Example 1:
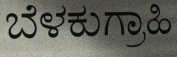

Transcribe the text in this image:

ಬೆಳಕುಗ್ರಾಹಿ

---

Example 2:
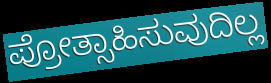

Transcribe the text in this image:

ಪ್ರೋತ್ಸಾಹಿಸುವುದಿಲ್ಲ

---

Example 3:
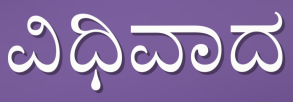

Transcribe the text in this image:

ವಿಧಿವಾದ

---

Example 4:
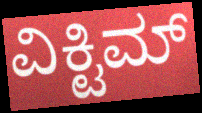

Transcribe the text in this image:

ವಿಕ್ಟಿಮ್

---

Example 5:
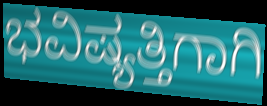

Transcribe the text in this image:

ಭವಿಷ್ಯತ್ತಿಗಾಗಿ